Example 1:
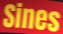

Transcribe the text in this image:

Sines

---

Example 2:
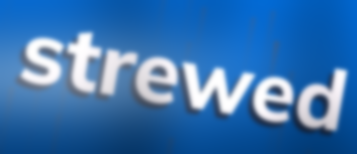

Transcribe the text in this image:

strewed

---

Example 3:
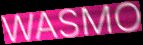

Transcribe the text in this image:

WASMO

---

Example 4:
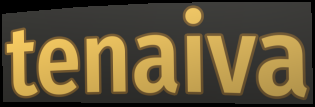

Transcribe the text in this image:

tenaiva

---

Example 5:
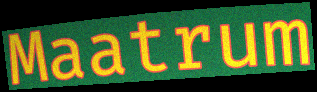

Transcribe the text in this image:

Maatrum